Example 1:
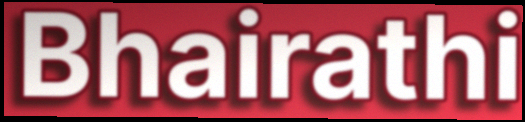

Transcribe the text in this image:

Bhairathi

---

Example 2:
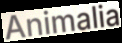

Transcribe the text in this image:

Animalia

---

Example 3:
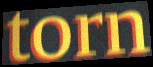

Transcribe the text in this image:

torn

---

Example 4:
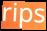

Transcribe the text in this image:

rips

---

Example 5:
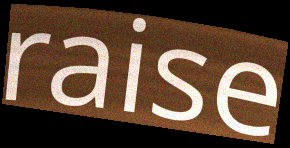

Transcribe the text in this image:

raise